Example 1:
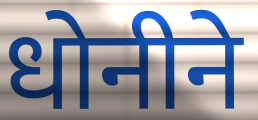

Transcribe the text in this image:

धोनीने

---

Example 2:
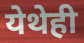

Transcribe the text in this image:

येथेही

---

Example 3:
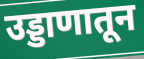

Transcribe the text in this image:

उड्डाणातून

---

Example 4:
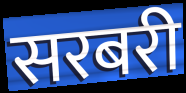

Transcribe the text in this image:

सरबरी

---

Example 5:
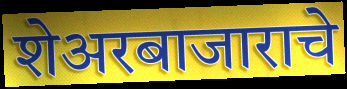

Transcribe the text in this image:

शेअरबाजाराचे